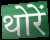
थोरें